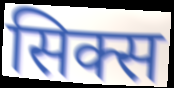
सिक्स